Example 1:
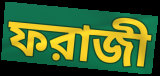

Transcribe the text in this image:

ফরাজী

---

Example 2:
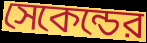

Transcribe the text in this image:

সেকেন্ডের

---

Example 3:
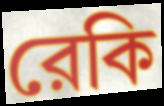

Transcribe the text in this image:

রেকি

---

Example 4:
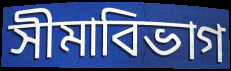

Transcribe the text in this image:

সীমাবিভাগ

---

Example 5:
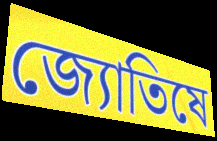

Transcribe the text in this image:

জ্যোতিষে